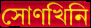
সোণখিনি